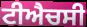
ਟੀਐਚਸੀ